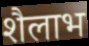
शैलाभ